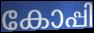
കോപ്പി